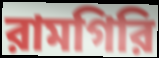
রামগিরি